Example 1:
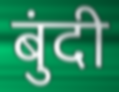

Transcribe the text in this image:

बुंदी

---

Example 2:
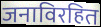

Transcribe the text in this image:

जनाविरहित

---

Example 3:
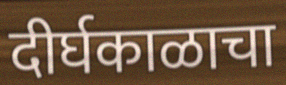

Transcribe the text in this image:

दीर्घकाळाचा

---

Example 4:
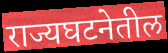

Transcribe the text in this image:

राज्यघटनेतील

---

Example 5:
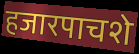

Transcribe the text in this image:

हजारपाचशे